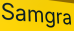
Samgra